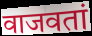
वाजवतां